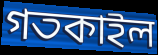
গতকাইল